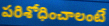
పరిశోధించాలంటే